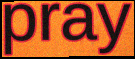
pray